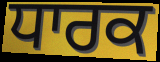
ਧਾਰਕ